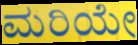
ಮರಿಯೇ